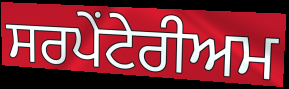
ਸਰਪੇਂਟੇਰੀਅਮ